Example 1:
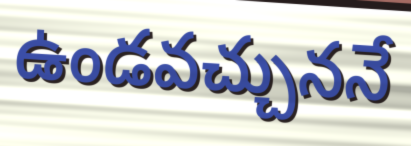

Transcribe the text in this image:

ఉండవచ్చుననే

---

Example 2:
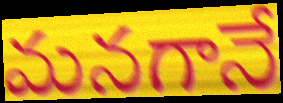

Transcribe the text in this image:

మనగానే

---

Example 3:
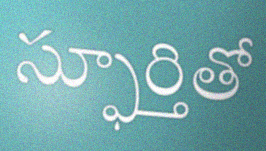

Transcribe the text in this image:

స్ఫూర్తితో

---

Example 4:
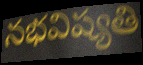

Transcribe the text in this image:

నభవిష్యతి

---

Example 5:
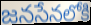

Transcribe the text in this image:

జనసేనలోకి